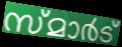
സ്മാർട്